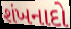
શંખનાદો